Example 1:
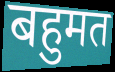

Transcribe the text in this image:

बहुमत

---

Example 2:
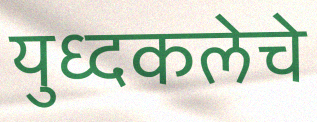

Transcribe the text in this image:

युध्दकलेचे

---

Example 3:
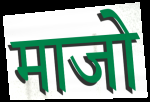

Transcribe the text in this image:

माजो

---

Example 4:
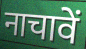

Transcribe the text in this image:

नाचावें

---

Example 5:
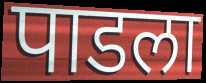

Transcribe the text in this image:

पाडला